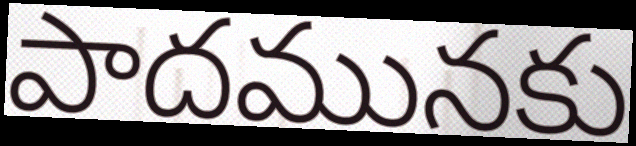
పాదమునకు